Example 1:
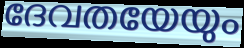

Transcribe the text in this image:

ദേവതയേയും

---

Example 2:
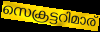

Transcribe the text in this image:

സെക്രട്ടറിമാര്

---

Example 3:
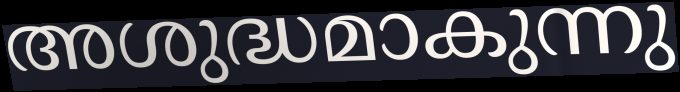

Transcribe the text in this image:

അശുദ്ധമാകുന്നു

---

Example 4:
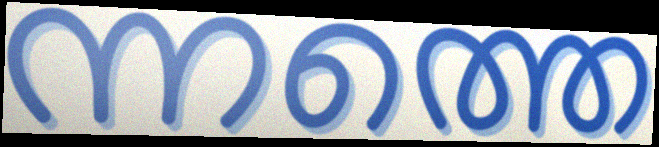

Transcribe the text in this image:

ന്നത്തെ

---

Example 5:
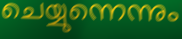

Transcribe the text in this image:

ചെയ്യുന്നെന്നും